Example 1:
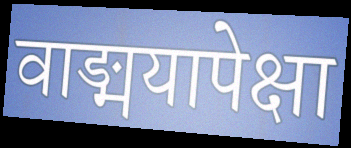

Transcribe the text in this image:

वाङ्मयापेक्षा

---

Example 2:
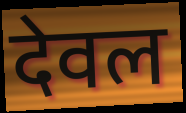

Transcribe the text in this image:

देवल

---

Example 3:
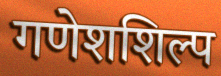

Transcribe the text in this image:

गणेशशिल्प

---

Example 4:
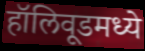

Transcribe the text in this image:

हॉलिवूडमध्ये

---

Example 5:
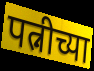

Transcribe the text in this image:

पत्नीच्या